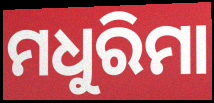
ମଧୁରିମା